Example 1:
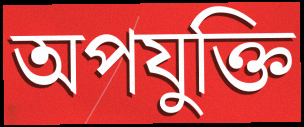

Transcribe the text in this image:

অপযুক্তি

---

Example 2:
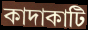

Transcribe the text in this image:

কাদাকাটি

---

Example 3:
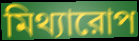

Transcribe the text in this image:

মিথ্যারোপ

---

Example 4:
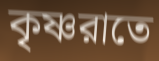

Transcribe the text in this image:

কৃষ্ণরাতে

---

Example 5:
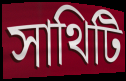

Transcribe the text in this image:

সাথিটি